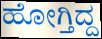
ಹೋಗ್ತಿದ್ದ